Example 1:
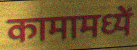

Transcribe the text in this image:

कामामध्यें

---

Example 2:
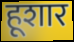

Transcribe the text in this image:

हूशार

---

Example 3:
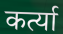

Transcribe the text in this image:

कर्त्या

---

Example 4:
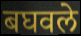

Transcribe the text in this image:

बघवले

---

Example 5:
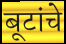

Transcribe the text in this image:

बूटांचे